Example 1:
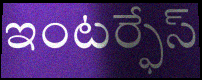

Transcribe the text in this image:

ఇంటర్ఫేస్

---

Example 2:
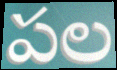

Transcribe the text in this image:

పల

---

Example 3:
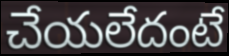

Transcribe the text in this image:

చేయలేదంటే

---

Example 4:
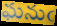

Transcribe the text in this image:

ఘనుఁ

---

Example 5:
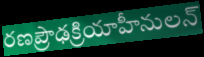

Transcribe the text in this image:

రణప్రౌఢక్రియాహీనులన్